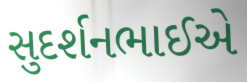
સુદર્શનભાઈએ